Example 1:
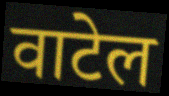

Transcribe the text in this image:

वाटेल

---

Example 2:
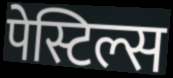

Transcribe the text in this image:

पेस्टिल्स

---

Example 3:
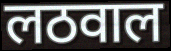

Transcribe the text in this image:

लठवाल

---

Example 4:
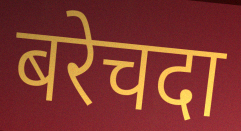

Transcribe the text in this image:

बरेचदा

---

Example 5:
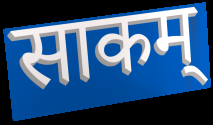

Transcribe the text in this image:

साकम्